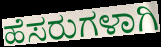
ಹೆಸರುಗಳಾಗಿ